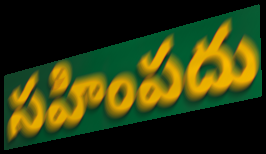
సహింపదు